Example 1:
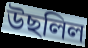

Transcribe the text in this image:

উছলিল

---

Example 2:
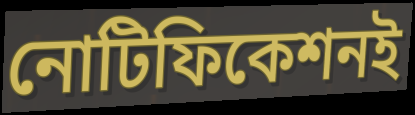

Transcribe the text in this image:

নোটিফিকেশনই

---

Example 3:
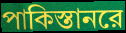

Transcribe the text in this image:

পাকিস্তানরে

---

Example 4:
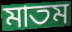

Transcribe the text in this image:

মাতম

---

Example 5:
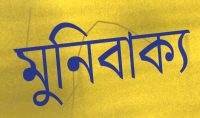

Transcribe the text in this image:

মুনিবাক্য